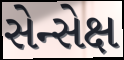
સેન્સેક્ષ